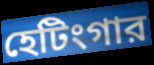
হেটিংগার